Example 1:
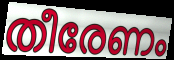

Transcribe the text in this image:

തീരേണം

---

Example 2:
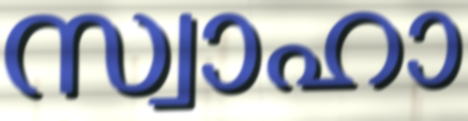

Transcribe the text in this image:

സ്വാഹാ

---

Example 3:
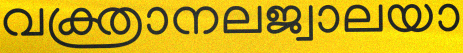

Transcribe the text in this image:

വക്ത്രാനലജ്വാലയാ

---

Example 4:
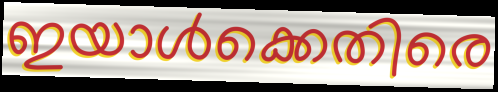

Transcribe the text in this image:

ഇയാൾക്കെതിരെ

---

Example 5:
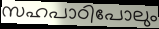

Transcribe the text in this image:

സഹപാഠിപോലും